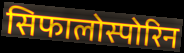
सिफालोस्पोरिन